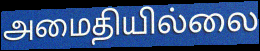
அமைதியில்லை